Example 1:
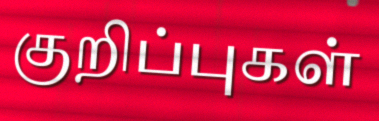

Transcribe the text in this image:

குறிப்புகள்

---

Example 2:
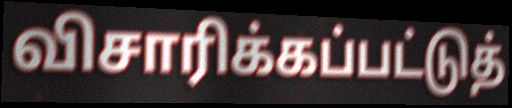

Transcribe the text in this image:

விசாரிக்கப்பட்டுத்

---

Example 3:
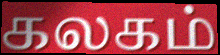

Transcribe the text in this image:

கலகம்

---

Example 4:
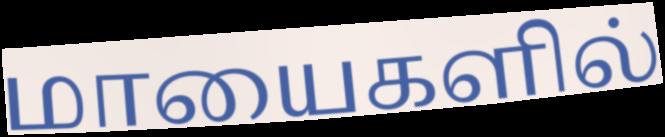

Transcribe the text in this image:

மாயைகளில்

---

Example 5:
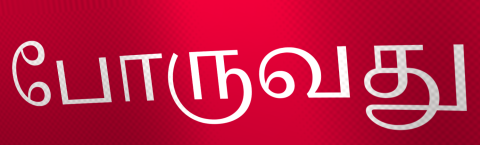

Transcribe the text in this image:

போருவது